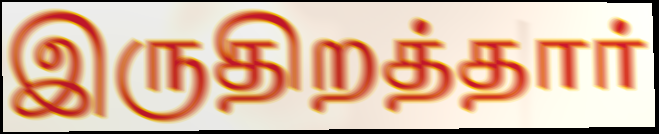
இருதிறத்தார்